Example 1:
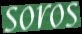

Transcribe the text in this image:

soros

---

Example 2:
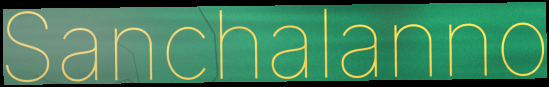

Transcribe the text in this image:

Sanchalanno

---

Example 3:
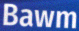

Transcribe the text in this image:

Bawm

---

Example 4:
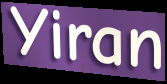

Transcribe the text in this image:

Yiran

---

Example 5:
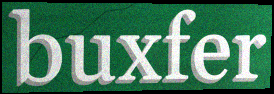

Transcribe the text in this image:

buxfer